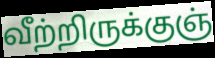
வீற்றிருக்குஞ்